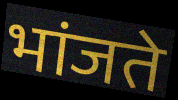
भांजते